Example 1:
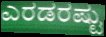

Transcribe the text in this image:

ಎರಡರಷ್ಟು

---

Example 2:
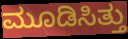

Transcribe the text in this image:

ಮೂಡಿಸಿತ್ತು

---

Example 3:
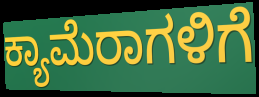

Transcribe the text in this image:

ಕ್ಯಾಮೆರಾಗಳಿಗೆ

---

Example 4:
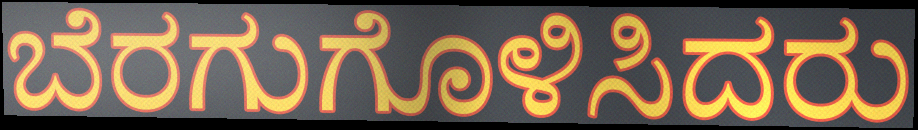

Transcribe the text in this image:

ಬೆರಗುಗೊಳಿಸಿದರು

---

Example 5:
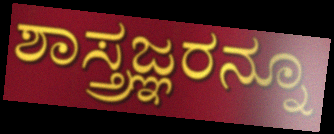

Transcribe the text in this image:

ಶಾಸ್ತ್ರಜ್ಞರನ್ನೂ